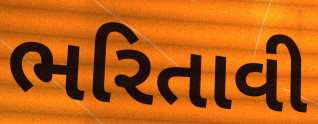
ભરિતાવી